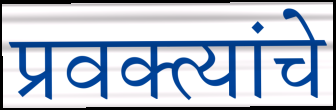
प्रवक्त्यांचे